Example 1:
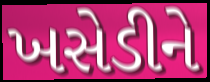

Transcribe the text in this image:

ખસેડીને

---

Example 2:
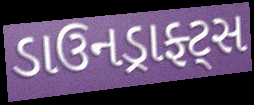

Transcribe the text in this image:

ડાઉનડ્રાફ્ટ્સ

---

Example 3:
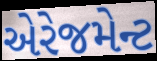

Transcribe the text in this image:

એરેજમેન્ટ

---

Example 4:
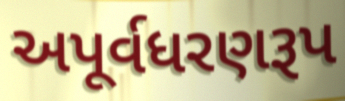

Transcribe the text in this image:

અપૂર્વધરણરૂપ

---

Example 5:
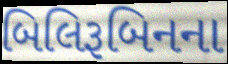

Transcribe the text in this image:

બિલિરૂબિનના